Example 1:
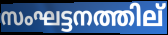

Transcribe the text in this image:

സംഘട്ടനത്തില്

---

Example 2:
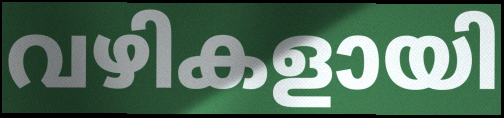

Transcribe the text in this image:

വഴികളായി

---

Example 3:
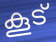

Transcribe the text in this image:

കൂട്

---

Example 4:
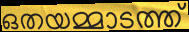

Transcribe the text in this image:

ഒതയമ്മാടത്ത്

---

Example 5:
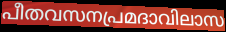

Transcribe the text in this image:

പീതവസനപ്രമദാവിലാസ